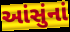
આંસુંનાં